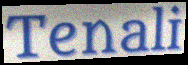
Tenali